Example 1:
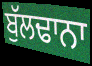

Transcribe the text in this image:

ਬੁੱਲਢਾਨਾ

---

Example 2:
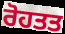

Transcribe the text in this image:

ਰੋਹਤਤ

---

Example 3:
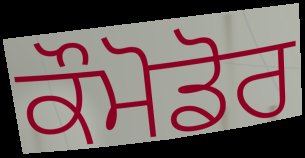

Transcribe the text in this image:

ਕੌਮੋਡੋਰ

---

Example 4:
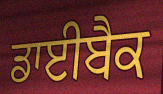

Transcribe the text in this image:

ਡਾਈਬੈਕ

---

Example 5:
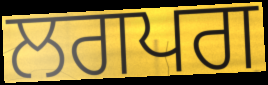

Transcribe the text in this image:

ਲਗਪਗ